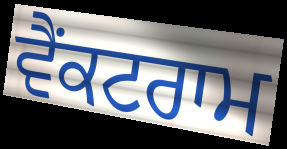
ਵੈਂਕਟਰਾਮ